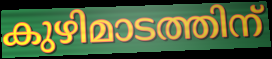
കുഴിമാടത്തിന്